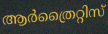
ആർത്രൈറ്റിസ്